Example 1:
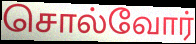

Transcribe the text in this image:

சொல்வோர்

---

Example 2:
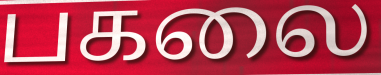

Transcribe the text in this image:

பகலை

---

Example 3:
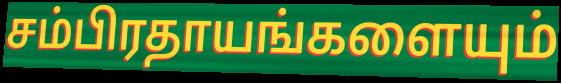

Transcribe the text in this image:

சம்பிரதாயங்களையும்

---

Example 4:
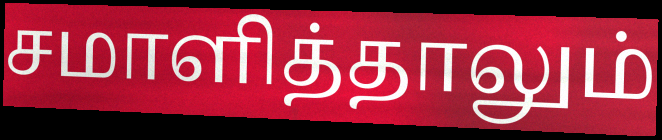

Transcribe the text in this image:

சமாளித்தாலும்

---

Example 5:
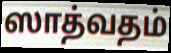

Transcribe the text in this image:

ஸாத்வதம்